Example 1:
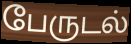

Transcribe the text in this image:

பேருடல்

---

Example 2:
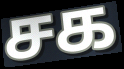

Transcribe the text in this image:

சக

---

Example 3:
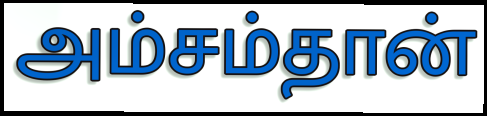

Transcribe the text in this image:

அம்சம்தான்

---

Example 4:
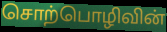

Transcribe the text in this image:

சொற்பொழிவின்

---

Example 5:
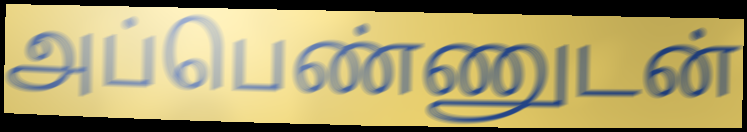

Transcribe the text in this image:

அப்பெண்ணுடன்